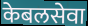
केबलसेवा